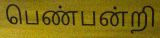
பெண்பன்றி